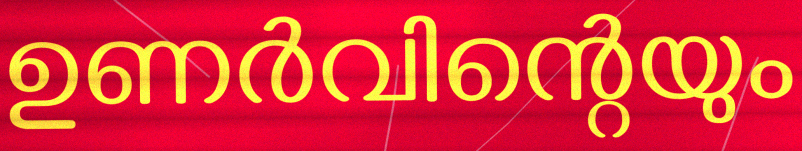
ഉണർവിന്റെയും